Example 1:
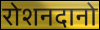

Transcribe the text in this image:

रोशनदानो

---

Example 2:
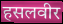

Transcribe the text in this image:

हसलवीर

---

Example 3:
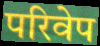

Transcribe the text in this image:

परिवेप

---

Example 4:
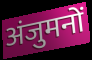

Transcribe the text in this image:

अंजुमनों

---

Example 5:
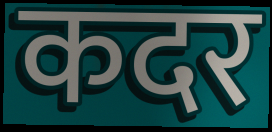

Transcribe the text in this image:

कदर